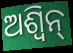
ଅଶ୍ବିନ୍